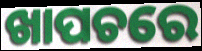
ଖାପଚରେ